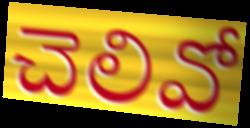
చెలివో